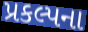
પ્રકલ્પના